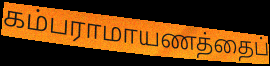
கம்பராமாயணத்தைப்